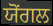
ਯੋਂਗਲ